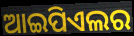
ଆଇପିଏଲର